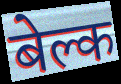
बेल्क